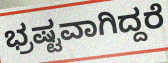
ಭ್ರಷ್ಟವಾಗಿದ್ದರೆ